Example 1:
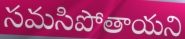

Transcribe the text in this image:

సమసిపోతాయని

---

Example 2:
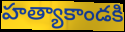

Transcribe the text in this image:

హత్యాకాండకి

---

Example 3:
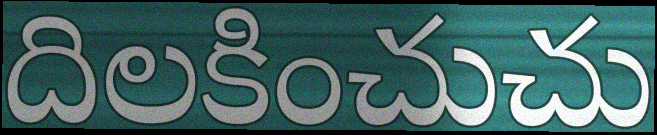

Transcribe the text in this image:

దిలకించుచు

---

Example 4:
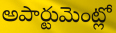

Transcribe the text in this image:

అపార్టుమెంట్లో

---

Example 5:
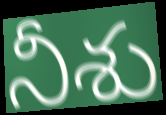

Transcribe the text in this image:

నీశు